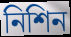
নিশিন